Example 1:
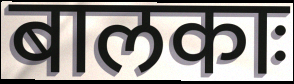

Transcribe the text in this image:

बालकाः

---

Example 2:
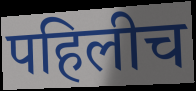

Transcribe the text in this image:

पहिलीच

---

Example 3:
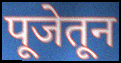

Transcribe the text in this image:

पूजेतून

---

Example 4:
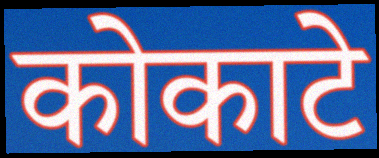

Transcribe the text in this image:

कोकाटे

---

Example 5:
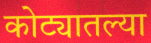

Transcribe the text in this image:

कोट्यातल्या